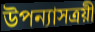
উপন্যাসত্রয়ী